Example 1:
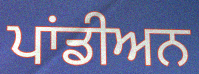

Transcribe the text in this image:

ਪਾਂਡੀਅਨ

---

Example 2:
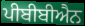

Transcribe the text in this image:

ਪੀਬੀਬੀਐਨ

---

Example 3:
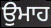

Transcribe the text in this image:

ਉਮਾਹ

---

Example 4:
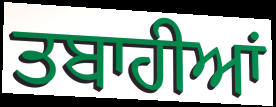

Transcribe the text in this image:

ਤਬਾਹੀਆਂ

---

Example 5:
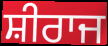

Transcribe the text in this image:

ਸ਼ੀਰਾਜ